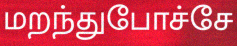
மறந்துபோச்சே